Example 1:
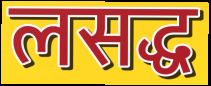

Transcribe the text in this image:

लसद्ध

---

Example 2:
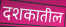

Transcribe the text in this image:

दशकातील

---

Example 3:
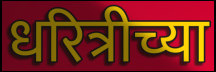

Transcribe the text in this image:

धरित्रीच्या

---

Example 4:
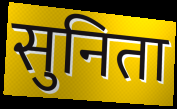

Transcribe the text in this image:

सुनिता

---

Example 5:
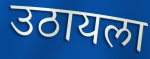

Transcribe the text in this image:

उठायला